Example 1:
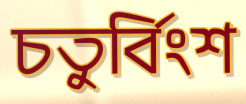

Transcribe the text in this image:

চতুৰ্বিংশ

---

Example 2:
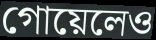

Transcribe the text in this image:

গোয়েলেও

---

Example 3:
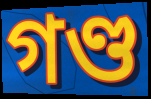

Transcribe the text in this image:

গণ্ড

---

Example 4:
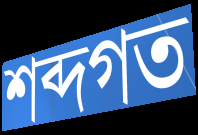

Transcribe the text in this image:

শব্দগত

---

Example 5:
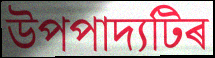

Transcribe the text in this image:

উপপাদ্যটিৰ